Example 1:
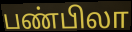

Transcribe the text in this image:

பண்பிலா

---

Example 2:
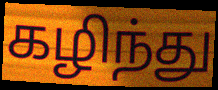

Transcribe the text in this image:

கழிந்து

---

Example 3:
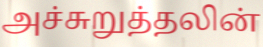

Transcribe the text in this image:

அச்சுறுத்தலின்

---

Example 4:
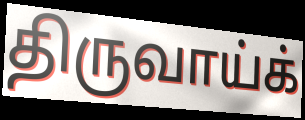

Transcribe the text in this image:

திருவாய்க்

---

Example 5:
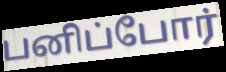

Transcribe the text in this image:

பனிப்போர்